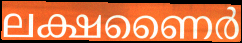
ലക്ഷണൈർ